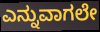
ಎನ್ನುವಾಗಲೇ